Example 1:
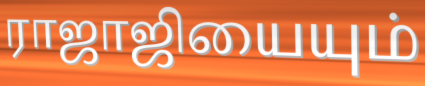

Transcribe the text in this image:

ராஜாஜியையும்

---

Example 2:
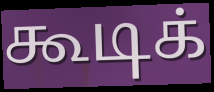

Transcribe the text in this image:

கூடிக்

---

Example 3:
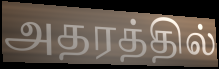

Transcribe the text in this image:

அதரத்தில்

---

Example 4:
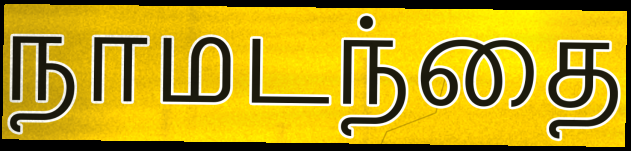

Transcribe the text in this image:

நாமடந்தை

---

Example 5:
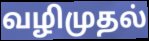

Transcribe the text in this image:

வழிமுதல்